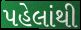
પહેલાંથી